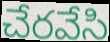
చేరవేసి